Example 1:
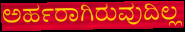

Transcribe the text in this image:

ಅರ್ಹರಾಗಿರುವುದಿಲ್ಲ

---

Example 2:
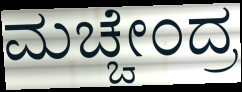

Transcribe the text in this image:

ಮಚ್ಚೇಂದ್ರ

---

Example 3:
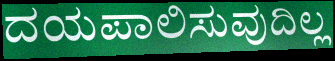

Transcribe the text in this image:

ದಯಪಾಲಿಸುವುದಿಲ್ಲ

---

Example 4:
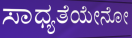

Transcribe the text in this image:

ಸಾಧ್ಯತೆಯೇನೋ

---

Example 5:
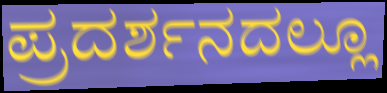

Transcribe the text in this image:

ಪ್ರದರ್ಶನದಲ್ಲೂ